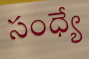
సంధ్యే